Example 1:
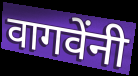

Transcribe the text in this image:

वागवेंनी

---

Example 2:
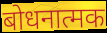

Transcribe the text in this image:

बोधनात्मक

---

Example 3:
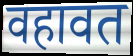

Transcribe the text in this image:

वहावत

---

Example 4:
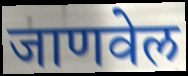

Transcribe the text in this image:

जाणवेल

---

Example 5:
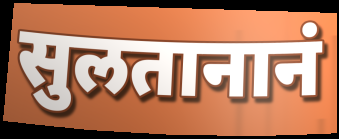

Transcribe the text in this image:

सुलतानानं